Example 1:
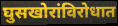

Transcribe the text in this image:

घुसखोरांविरोधात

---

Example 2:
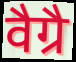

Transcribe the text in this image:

वैग्रै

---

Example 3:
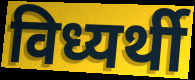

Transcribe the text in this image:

विध्यर्थी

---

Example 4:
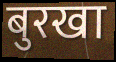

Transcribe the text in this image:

बुरखा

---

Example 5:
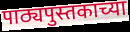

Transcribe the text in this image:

पाठ्यपुस्तकाच्या